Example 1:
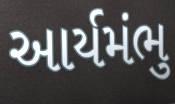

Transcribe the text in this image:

આર્યમંભુ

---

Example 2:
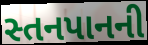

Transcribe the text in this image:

સ્તનપાનની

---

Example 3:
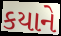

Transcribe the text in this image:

કયાને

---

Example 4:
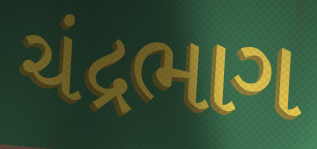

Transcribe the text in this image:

ચંદ્રભાગ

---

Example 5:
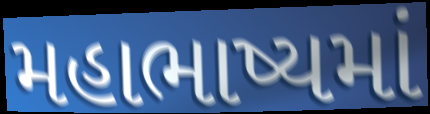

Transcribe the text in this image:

મહાભાષ્યમાં